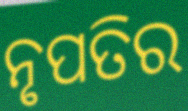
ନୃପତିର